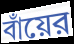
বাঁয়ের